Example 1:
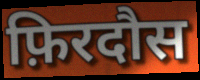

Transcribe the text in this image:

फ़िरदौस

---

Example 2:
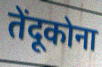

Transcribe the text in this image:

तेंदूकोना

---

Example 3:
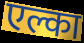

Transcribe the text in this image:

एल्का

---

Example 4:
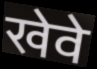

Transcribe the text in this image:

खेवे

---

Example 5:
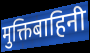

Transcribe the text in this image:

मुक्तिबाहिनी